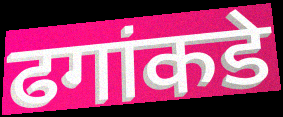
ढगांकडे